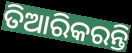
ତିଆରିକରନ୍ତି